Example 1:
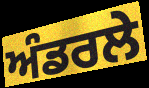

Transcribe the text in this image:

ਅੰਡਰਲੇ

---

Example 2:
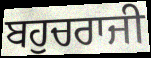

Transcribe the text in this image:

ਬਹੁਚਰਾਜੀ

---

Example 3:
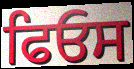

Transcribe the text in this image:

ਫਿਓਸ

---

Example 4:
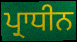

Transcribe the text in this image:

ਪ੍ਰਾਧੀਨ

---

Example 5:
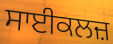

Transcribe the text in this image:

ਸਾਈਕਲਜ਼